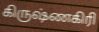
கிருஷ்ணகிரி